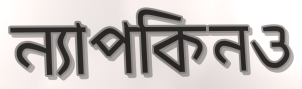
ন্যাপকিনও